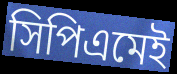
সিপিএমেই